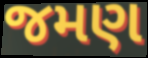
જમણ